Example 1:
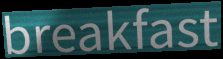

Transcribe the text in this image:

breakfast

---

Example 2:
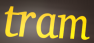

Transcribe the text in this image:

tram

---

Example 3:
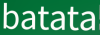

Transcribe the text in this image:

batata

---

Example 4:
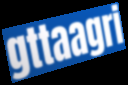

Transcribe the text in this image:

gttaagri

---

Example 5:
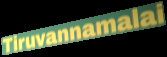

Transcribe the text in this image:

Tiruvannamalai